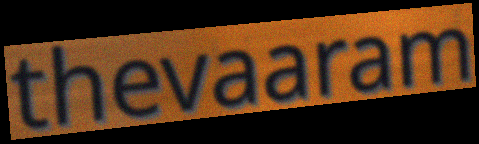
thevaaram